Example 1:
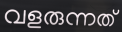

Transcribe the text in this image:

വളരുന്നത്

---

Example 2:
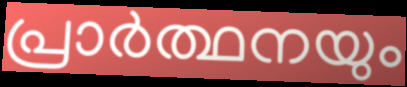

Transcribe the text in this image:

പ്രാർത്ഥനയും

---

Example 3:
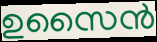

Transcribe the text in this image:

ഉസൈൻ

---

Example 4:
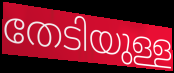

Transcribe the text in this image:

തേടിയുള്ള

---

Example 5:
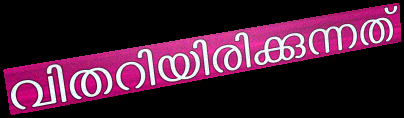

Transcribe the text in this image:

വിതറിയിരിക്കുന്നത്